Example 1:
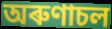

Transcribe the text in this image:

অৰুণাচল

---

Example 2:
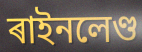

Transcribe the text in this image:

ৰাইনলেণ্ড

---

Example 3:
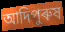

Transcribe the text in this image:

আদিপুৰুষ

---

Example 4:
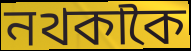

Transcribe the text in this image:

নথকাকৈ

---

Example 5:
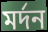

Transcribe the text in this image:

মৰ্দন